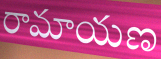
రామాయణ